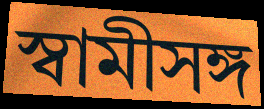
স্বামীসঙ্গ